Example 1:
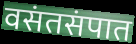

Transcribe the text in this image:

वसंतसंपात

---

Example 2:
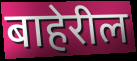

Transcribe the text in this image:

बाहेरील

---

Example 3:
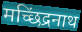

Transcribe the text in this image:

मच्छिंद्रनाथ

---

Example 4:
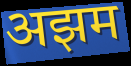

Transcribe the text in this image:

अझम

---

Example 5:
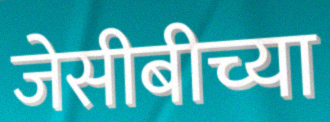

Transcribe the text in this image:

जेसीबीच्या